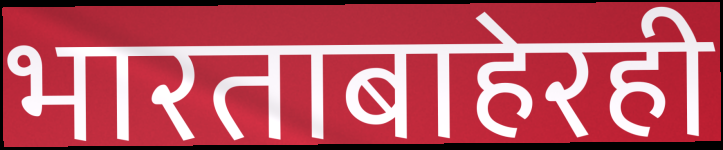
भारताबाहेरही